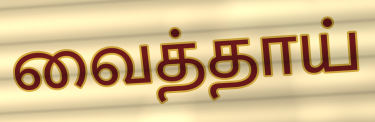
வைத்தாய்